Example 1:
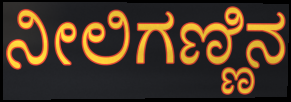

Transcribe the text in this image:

ನೀಲಿಗಣ್ಣಿನ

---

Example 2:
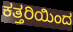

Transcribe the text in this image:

ಕತ್ತರಿಯಿಂದ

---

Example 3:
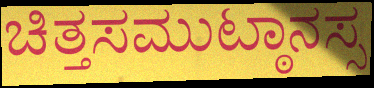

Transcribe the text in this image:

ಚಿತ್ತಸಮುಟ್ಠಾನಸ್ಸ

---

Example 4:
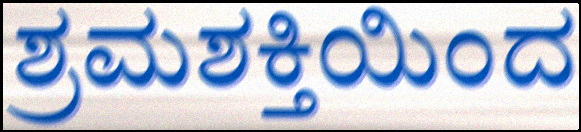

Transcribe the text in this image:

ಶ್ರಮಶಕ್ತಿಯಿಂದ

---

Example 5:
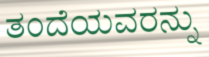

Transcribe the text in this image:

ತಂದೆಯವರನ್ನು